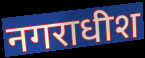
नगराधीश